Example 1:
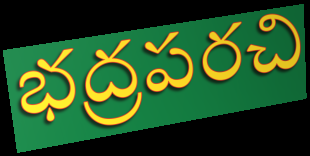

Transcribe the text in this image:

భద్రపరచి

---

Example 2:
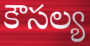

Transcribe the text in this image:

కౌసల్య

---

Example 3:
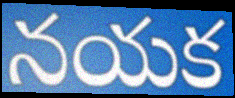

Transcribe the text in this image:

నయక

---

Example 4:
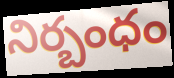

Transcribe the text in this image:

నిర్బంధం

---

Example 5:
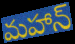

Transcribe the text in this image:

మహాన్